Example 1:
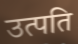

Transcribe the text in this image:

उत्पति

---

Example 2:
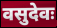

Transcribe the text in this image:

वसुदेवः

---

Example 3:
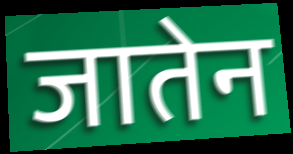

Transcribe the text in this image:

जातेन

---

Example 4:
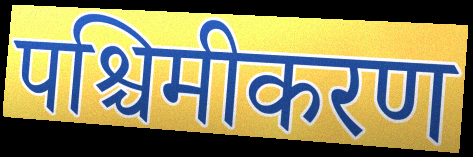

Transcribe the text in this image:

पश्चिमीकरण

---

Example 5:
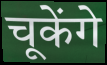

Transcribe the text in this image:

चूकेंगे